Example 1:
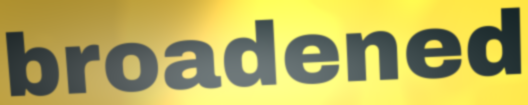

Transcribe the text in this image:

broadened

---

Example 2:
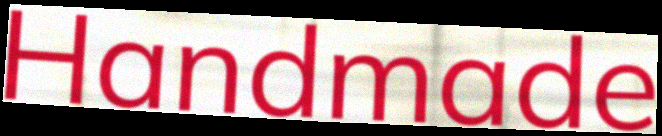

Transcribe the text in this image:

Handmade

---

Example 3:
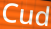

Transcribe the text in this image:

Cud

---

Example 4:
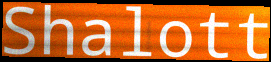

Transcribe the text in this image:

Shalott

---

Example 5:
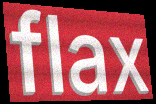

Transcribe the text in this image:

flax